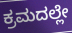
ಕ್ರಮದಲ್ಲೇ